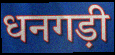
धनगड़ी